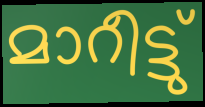
മാറീട്ടു്